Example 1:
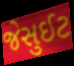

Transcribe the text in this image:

જેસુઈટ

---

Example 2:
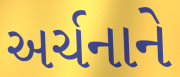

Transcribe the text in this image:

અર્ચનાને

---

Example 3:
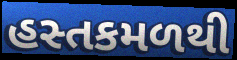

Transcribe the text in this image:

હસ્તકમળથી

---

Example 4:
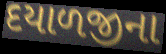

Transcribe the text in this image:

દયાળજીના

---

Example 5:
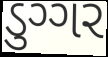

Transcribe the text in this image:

ડુગ્ગર